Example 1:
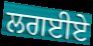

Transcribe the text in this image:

ਲਗਈਏ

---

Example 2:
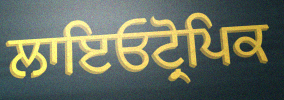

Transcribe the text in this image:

ਲਾਇਓਟ੍ਰੋਪਿਕ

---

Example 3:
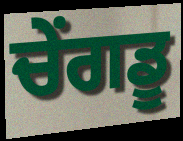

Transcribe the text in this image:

ਚੇਂਗਡੂ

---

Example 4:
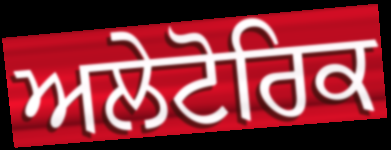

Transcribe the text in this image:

ਅਲੇਟੋਰਿਕ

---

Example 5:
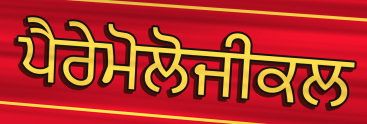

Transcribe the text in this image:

ਪੈਰੇਮੋਲੋਜੀਕਲ